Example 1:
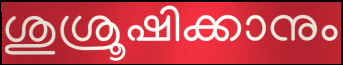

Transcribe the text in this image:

ശുശ്രൂഷിക്കാനും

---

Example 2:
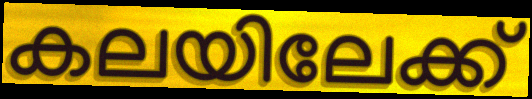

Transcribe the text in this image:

കലയിലേക്ക്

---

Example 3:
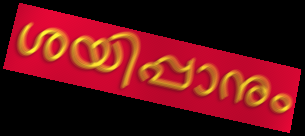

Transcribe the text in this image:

ശയിപ്പാനും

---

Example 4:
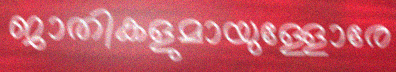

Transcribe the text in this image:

ജാതികളുമായുള്ളോരേ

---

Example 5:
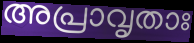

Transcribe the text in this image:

അപ്രാവൃതാഃ